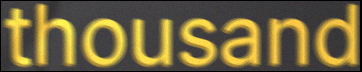
thousand